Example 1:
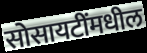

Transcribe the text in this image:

सोसायटींमधील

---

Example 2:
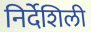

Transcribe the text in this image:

निर्देशिली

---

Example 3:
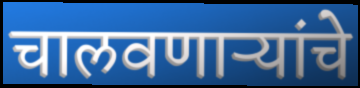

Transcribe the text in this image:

चालवणाऱ्यांचे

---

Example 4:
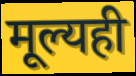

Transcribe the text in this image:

मूल्यही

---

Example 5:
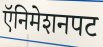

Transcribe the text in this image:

ऍनिमेशनपट